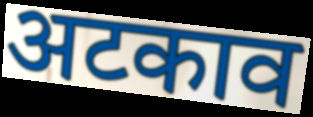
अटकाव